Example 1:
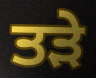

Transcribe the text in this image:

ਤੜੇ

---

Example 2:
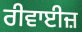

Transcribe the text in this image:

ਰੀਵਾਈਜ਼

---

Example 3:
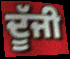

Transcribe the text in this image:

ਦੂੱਜੀ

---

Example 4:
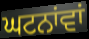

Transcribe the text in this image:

ਘਟਨਾਂਵਾਂ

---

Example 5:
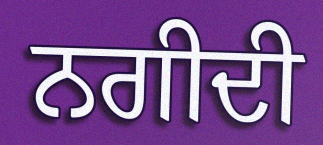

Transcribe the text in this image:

ਨਗੀਦੀ